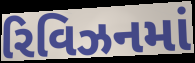
રિવિઝનમાં